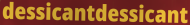
dessicantdessicant